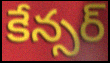
కేన్సర్